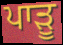
ਪਾੜੂ